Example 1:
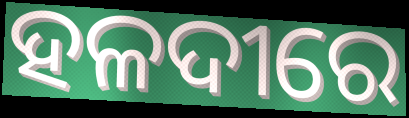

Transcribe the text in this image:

ହଳଦୀରେ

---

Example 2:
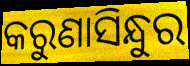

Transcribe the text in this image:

କରୁଣାସିନ୍ଧୁର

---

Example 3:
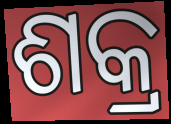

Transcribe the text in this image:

ଶକ୍ର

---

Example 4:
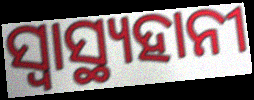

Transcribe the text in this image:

ସ୍ବାସ୍ଥ୍ୟହାନୀ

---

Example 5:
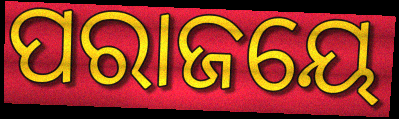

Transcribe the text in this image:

ପରାଜୟେ